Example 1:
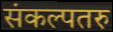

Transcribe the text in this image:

संकल्पतरु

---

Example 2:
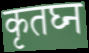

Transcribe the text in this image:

कृतघ्न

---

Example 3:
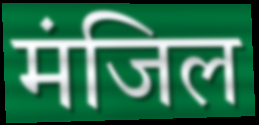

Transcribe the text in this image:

मंजिल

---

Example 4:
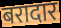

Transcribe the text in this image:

बरादार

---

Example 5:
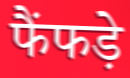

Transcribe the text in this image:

फैंफड़े